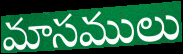
మాసములు